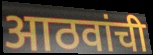
आठवांची